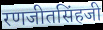
रणजीतसिंहजी